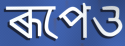
ৰূপেও